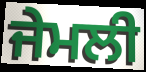
ਜੇਮਲੀ